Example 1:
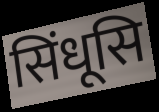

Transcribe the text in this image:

सिंधूसि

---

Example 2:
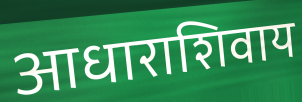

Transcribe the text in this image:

आधाराशिवाय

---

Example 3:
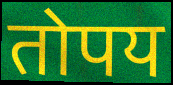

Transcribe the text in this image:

तोपय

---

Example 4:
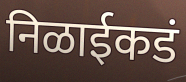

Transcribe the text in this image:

निळाईकडं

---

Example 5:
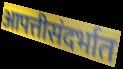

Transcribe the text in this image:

आपत्तीसंदर्भात